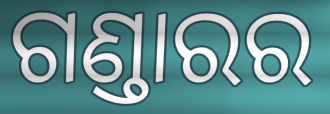
ଗଣ୍ଡାରର